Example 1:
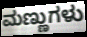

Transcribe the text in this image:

ಮಣ್ಣುಗಳು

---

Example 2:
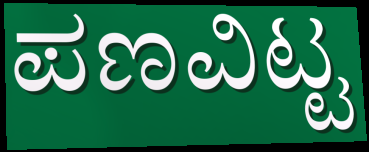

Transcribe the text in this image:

ಪಣವಿಟ್ಟ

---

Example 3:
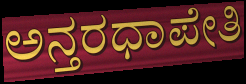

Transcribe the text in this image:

ಅನ್ತರಧಾಪೇತಿ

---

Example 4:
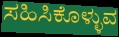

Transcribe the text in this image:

ಸಹಿಸಿಕೊಳ್ಳುವ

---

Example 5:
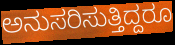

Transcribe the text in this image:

ಅನುಸರಿಸುತ್ತಿದ್ದರೂ